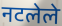
नटलेले